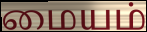
மையம்